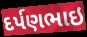
દર્પણભાઇ